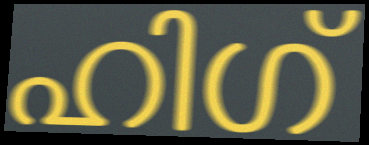
ഹിഗ്